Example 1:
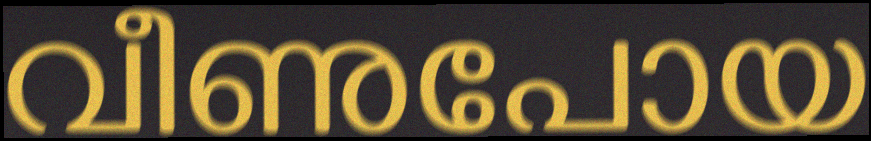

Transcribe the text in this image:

വീണുപോയ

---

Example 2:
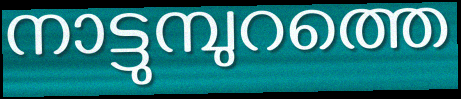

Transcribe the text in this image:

നാട്ടുമ്പുറത്തെ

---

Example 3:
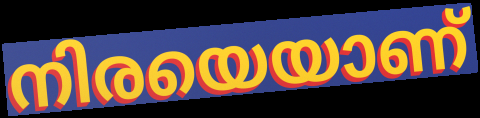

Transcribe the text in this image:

നിരയെയാണ്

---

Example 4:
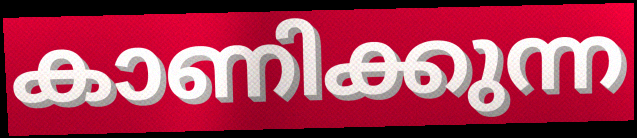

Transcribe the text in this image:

കാണിക്കുന്ന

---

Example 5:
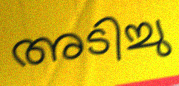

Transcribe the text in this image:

അടിച്ചു